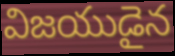
విజయుడైన